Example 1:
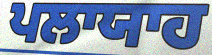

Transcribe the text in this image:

ਪਲਾਯਾਹ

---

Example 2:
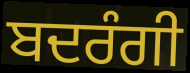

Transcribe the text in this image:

ਬਦਰੰਗੀ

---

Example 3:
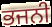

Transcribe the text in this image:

ਭਜਨੀ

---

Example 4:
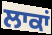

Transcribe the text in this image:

ਲਾਕਾਂ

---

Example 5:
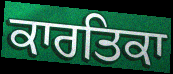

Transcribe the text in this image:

ਕਾਰਤਿਕਾ